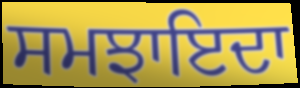
ਸਮਝਾਇਦਾ